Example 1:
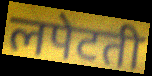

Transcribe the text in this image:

लपेटती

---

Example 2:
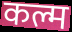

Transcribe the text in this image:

कल्म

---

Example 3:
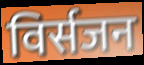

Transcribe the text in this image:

विर्सजन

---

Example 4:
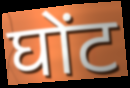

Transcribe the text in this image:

घोंट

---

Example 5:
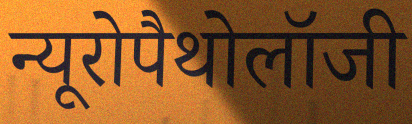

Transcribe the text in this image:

न्यूरोपैथोलॉजी